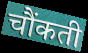
चौंकती